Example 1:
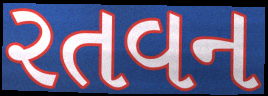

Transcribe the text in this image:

રતવન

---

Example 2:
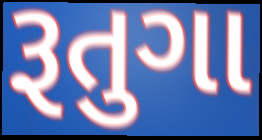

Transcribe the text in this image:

રૂતુગા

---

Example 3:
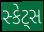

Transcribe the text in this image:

સ્કેટ્સ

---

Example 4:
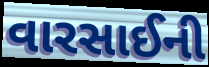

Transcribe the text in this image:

વારસાઈની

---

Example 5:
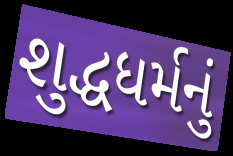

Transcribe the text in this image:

શુદ્ધધર્મનું